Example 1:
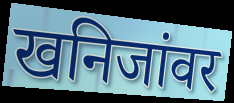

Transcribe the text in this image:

खनिजांवर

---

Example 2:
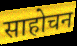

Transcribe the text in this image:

साहोचन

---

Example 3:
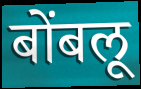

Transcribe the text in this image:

बोंबलू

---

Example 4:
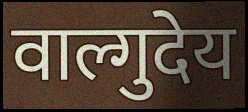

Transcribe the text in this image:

वाल्गुदेय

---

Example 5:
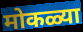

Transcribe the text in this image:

मोकळ्या